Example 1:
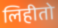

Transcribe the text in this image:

लिहीतो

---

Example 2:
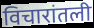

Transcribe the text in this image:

विचारांतली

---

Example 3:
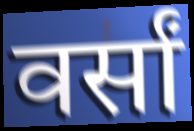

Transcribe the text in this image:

वर्सां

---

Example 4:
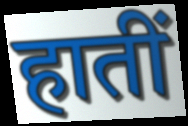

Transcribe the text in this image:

हातीं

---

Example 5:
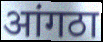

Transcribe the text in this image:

आंगठा